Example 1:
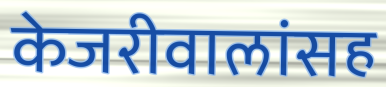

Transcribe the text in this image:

केजरीवालांसह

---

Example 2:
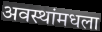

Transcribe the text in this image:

अवस्थांमधला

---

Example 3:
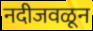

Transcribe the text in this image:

नदीजवळून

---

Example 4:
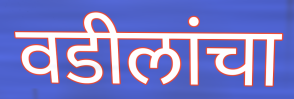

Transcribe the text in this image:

वडीलांचा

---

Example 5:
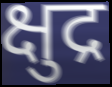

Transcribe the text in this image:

क्षुद्र